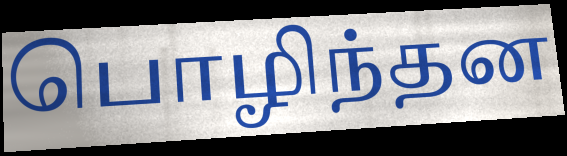
பொழிந்தன